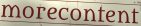
morecontent